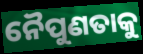
ନୈପୁଣତାକୁ